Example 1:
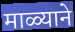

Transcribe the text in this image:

माळ्याने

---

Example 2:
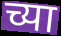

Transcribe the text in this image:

च्या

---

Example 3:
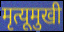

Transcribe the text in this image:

मृत्यूमुखी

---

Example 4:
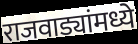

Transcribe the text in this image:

राजवाड्यांमध्ये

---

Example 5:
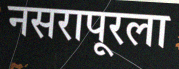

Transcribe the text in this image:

नसरापूरला